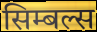
सिम्बल्स